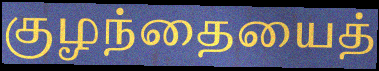
குழந்தையைத்